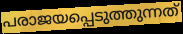
പരാജയപ്പെടുത്തുന്നത്